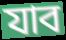
যাব